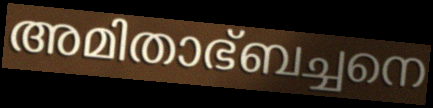
അമിതാഭ്ബച്ചനെ